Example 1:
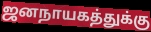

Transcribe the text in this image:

ஜனநாயகத்துக்கு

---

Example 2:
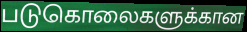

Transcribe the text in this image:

படுகொலைகளுக்கான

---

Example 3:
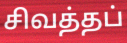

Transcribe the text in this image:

சிவத்தப்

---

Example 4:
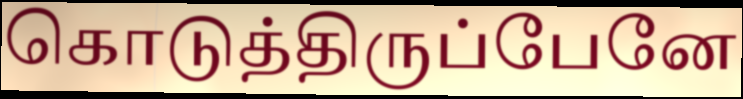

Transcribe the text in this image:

கொடுத்திருப்பேனே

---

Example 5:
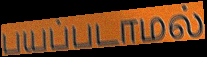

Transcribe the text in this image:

பயப்படாமல்